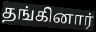
தங்கினார்